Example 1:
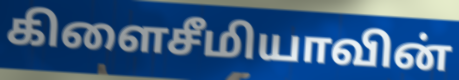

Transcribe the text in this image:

கிளைசீமியாவின்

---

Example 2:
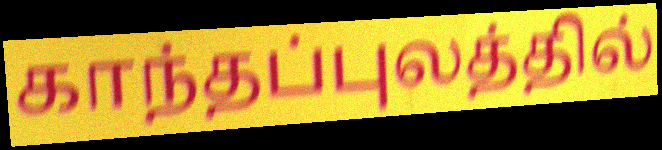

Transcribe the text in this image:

காந்தப்புலத்தில்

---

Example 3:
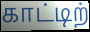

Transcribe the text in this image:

காட்டிற்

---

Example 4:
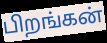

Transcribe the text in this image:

பிறங்கன்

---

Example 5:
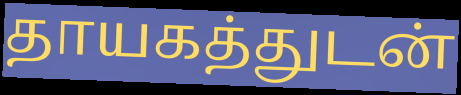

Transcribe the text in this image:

தாயகத்துடன்